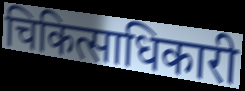
चिकित्साधिकारी